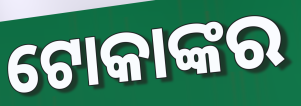
ଟୋକାଙ୍କର